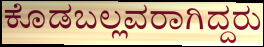
ಕೊಡಬಲ್ಲವರಾಗಿದ್ದರು